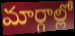
మార్గాల్లో